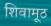
शिवामूठ